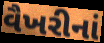
વૈખરીનાં